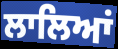
ਲਾਲਿਆਂ